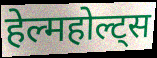
हेल्महोल्ट्स